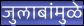
जुलाबांमुळे